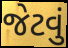
જેટવું